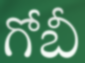
గోబీ